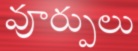
వూర్పులు